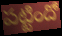
పట్టిందో